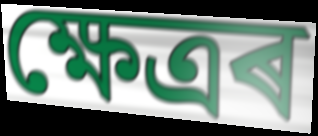
ক্ষেত্ৰৰ